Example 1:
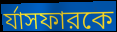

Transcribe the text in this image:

র্যাসফারকে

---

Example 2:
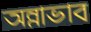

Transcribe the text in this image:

অন্নাভাব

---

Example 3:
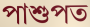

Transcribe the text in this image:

পাশুপত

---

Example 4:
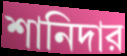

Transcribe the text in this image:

শানিদার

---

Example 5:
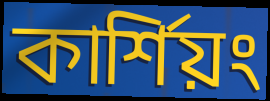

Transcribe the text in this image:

কার্শিয়ং